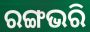
ରଙ୍ଗଭରି